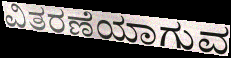
ವಿತರಣೆಯಾಗುವ